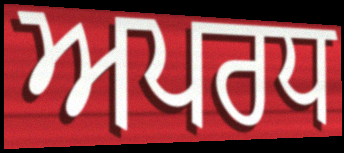
ਅਪਰਧ